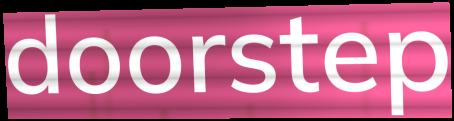
doorstep